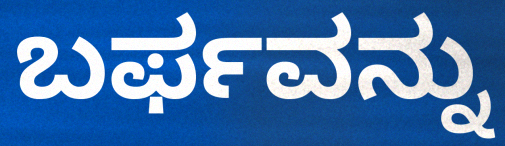
ಬರ್ಫವನ್ನು